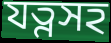
যত্নসহ